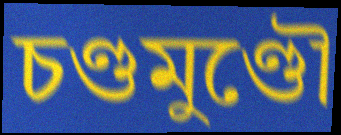
চণ্ডমুণ্ডৌ